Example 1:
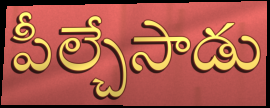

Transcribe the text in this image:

పీల్చేసాడు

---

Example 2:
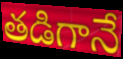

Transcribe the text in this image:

తడిగానే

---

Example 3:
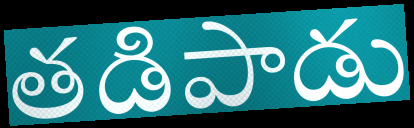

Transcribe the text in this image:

తడిపాడు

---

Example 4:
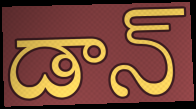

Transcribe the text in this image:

డాన్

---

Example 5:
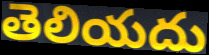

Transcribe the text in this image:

తెలియదు